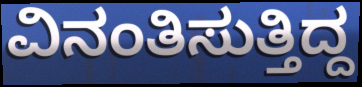
ವಿನಂತಿಸುತ್ತಿದ್ದ